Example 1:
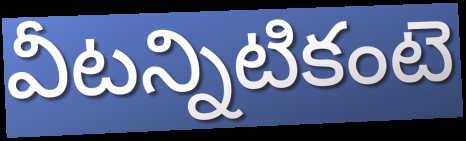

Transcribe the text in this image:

వీటన్నిటికంటె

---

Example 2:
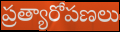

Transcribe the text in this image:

ప్రత్యారోపణలు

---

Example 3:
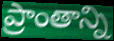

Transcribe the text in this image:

ప్రాంతాన్ని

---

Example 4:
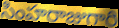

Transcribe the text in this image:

సింహరాజుగారి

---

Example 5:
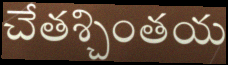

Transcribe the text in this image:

చేతశ్చింతయ